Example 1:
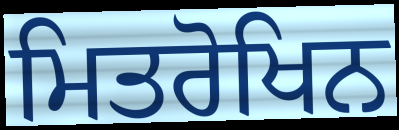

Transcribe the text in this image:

ਮਿਤਰੋਖਿਨ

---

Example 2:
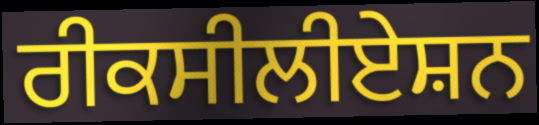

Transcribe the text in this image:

ਰੀਕਸੀਲੀਏਸ਼ਨ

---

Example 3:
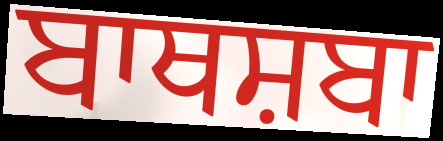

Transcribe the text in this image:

ਬਾਥਸ਼ਬਾ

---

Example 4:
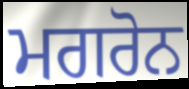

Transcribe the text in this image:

ਮਗਰੋਨ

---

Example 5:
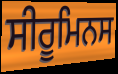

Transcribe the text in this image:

ਸੀਰੂਮਿਨਸ